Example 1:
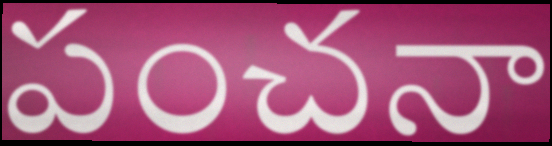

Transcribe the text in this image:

పంచనా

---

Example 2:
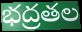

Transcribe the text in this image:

భద్రతల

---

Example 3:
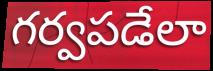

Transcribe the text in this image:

గర్వపడేలా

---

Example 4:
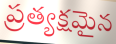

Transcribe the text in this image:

ప్రత్యక్షమైన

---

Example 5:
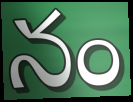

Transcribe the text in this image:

నం